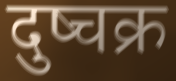
दुष्चक्र